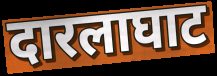
दारलाघाट